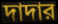
দাদার